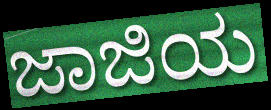
ಜಾಜಿಯ